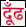
दूँढ